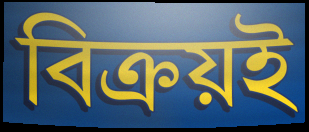
বিক্রয়ই